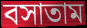
বসাতাম